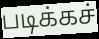
படிக்கச்